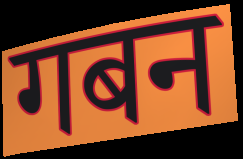
गबन